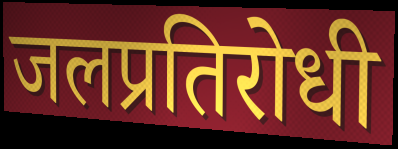
जलप्रतिरोधी